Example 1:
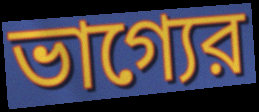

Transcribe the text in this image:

ভাগ্যের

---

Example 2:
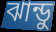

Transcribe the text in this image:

ঝান্ডু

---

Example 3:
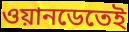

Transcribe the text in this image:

ওয়ানডেতেই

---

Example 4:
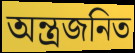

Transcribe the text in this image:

অন্ত্রজনিত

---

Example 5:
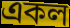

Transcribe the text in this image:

একল